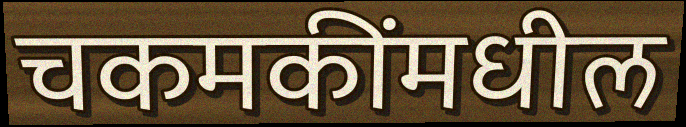
चकमकींमधील